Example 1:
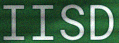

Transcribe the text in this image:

IISD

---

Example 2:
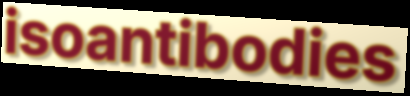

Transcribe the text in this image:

isoantibodies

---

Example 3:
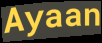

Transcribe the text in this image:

Ayaan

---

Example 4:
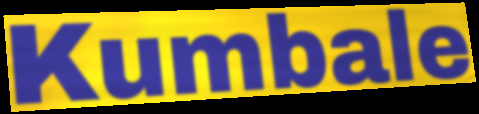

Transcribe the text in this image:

Kumbale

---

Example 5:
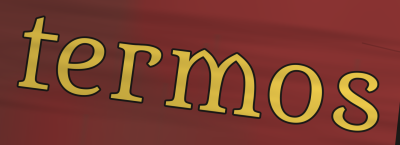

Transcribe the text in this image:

termos